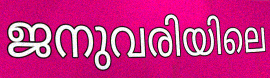
ജനുവരിയിലെ